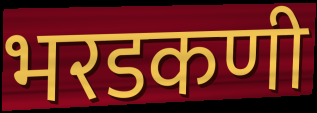
भरडकणी